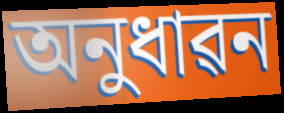
অনুধাৱন